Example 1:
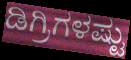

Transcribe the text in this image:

ಡಿಗ್ರಿಗಳಷ್ಟು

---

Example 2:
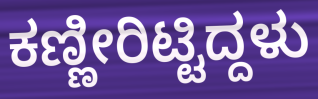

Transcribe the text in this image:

ಕಣ್ಣೀರಿಟ್ಟಿದ್ದಳು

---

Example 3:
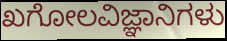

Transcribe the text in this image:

ಖಗೋಲವಿಜ್ಞಾನಿಗಳು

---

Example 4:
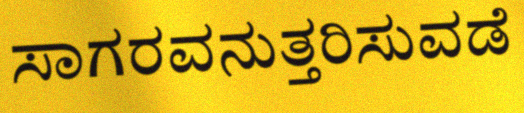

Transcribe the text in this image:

ಸಾಗರವನುತ್ತರಿಸುವಡೆ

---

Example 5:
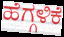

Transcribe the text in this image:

ಹೆಗ್ಗಳಿಕೆ